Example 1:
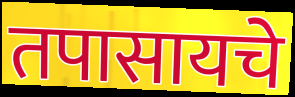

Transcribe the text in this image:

तपासायचे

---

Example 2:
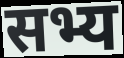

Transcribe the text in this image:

सभ्य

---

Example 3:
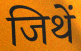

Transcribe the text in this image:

जिथें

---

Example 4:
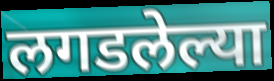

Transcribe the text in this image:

लगडलेल्या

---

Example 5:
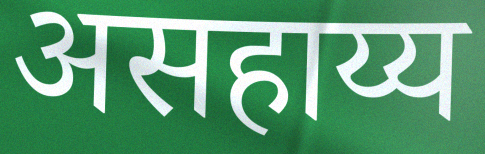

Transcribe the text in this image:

असहाय्य